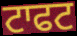
ਟਾਫਟ